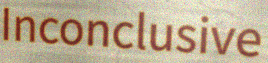
Inconclusive